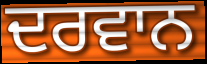
ਦਰਵਾਨ